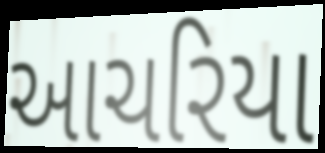
આચરિયા